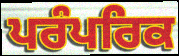
ਪਰੰਪਰਿਕ